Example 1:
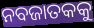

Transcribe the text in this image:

ନବଜାତକକୁ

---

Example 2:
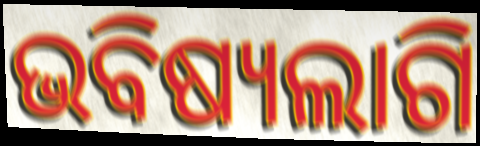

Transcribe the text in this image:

ଭବିଷ୍ୟଲାଗି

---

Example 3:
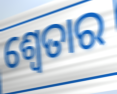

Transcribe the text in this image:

ଶ୍ଵେତାର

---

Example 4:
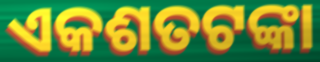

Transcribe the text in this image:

ଏକଶତଟଙ୍କା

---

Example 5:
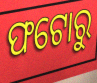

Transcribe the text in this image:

ଫଟୋରୁ